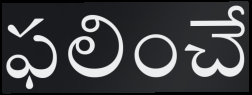
ఫలించే